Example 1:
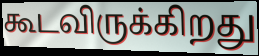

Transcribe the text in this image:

கூடவிருக்கிறது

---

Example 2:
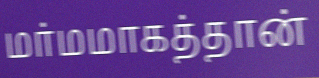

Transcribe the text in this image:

மர்மமாகத்தான்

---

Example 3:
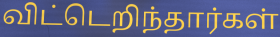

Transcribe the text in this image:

விட்டெறிந்தார்கள்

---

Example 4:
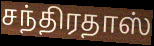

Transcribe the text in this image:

சந்திரதாஸ்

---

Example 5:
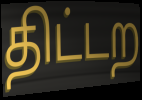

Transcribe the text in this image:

திட்டற